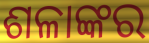
ଶଳାଙ୍କର